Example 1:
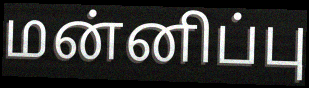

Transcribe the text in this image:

மன்னிப்பு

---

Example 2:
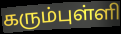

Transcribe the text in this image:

கரும்புள்ளி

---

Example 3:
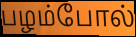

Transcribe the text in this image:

பழம்போல்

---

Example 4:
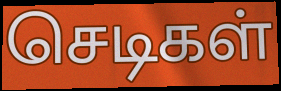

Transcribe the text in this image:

செடிகள்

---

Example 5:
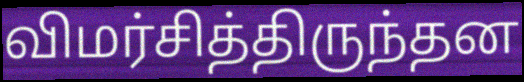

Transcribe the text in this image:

விமர்சித்திருந்தன